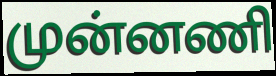
முன்னணி